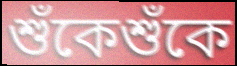
শুঁকেশুঁকে